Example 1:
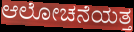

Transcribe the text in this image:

ಆಲೋಚನೆಯತ್ತ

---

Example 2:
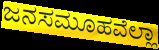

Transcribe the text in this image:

ಜನಸಮೂಹವೆಲ್ಲಾ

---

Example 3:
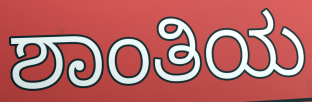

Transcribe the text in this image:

ಶಾಂತಿಯ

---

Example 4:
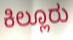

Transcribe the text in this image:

ಕಿಲ್ಲೂರು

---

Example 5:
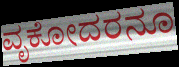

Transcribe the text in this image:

ವೃಕೋದರನೂ